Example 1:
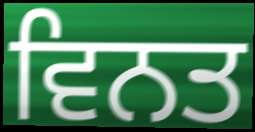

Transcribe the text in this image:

ਵਿਨਤ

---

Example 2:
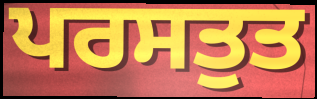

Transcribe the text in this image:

ਪਰਸਤੁਤ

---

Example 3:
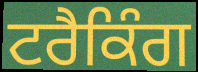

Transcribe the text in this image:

ਟਰੈਕਿੰਗ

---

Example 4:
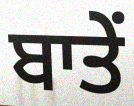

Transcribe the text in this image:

ਬਾਤੇਂ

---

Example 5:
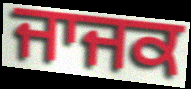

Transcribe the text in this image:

ਜਾਜਕ